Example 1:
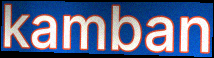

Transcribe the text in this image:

kamban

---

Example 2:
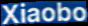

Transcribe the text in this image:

Xiaobo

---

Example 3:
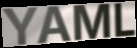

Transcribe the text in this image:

YAML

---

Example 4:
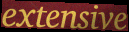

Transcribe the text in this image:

extensive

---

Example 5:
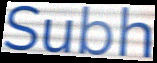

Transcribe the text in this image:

Subh